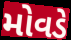
મોવડે